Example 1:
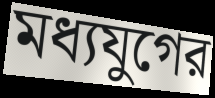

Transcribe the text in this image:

মধ্যযুগের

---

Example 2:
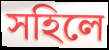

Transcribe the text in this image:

সহিলে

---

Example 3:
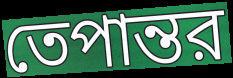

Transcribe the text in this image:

তেপান্তর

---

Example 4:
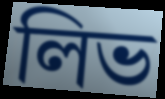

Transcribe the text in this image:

লিভ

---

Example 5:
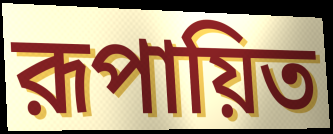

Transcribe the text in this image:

রূপায়িত